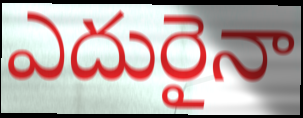
ఎదురైనా